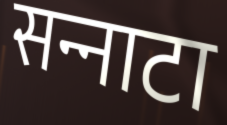
सन्‍नाटा